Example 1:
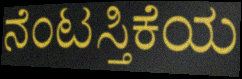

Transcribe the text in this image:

ನೆಂಟಸ್ತಿಕೆಯ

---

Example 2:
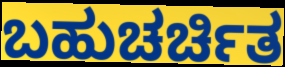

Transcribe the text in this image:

ಬಹುಚರ್ಚಿತ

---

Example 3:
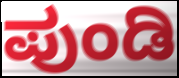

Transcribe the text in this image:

ಪುಂಡಿ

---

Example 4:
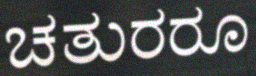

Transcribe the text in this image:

ಚತುರರೂ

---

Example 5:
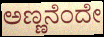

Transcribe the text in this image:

ಅಣ್ಣನೆಂದೇ